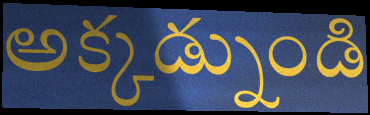
అక్కడ్నుండి